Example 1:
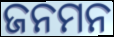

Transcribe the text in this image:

ଜନମନ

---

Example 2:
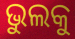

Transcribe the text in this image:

ଭୁଲକୁ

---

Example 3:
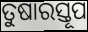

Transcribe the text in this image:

ତୁଷାରସ୍ତୂପ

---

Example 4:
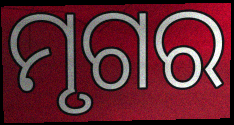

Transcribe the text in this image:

ମୃଗର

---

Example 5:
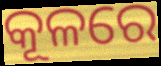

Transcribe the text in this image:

କୂଳରେ